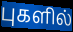
புகளில்